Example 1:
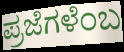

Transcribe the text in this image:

ಪ್ರಜೆಗಳೆಂಬ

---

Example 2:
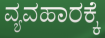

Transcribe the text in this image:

ವ್ಯವಹಾರಕ್ಕೆ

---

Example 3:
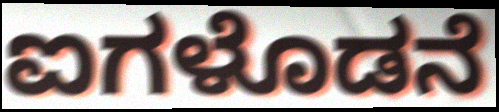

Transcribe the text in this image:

ಐಗಳೊಡನೆ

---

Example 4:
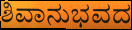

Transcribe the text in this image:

ಶಿವಾನುಭವದ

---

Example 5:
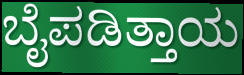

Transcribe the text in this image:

ಬೈಪಡಿತ್ತಾಯ